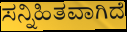
ಸನ್ನಿಹಿತವಾಗಿದೆ